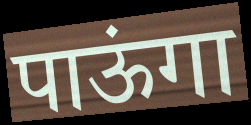
पाऊंगा